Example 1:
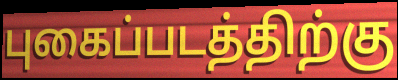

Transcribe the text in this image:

புகைப்படத்திற்கு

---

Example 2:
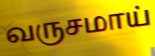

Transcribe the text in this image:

வருசமாய்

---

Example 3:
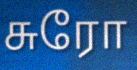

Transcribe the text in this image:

சுரோ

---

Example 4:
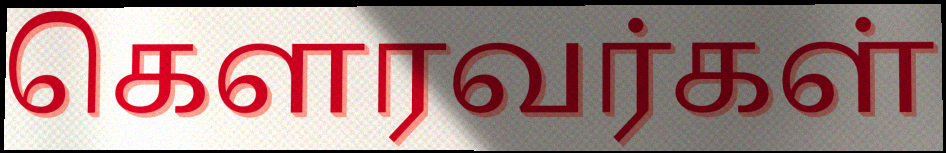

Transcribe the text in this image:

கௌரவர்கள்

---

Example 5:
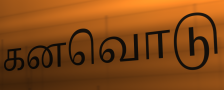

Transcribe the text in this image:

கனவொடு